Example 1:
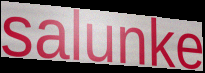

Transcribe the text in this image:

salunke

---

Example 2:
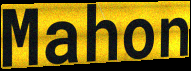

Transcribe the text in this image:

Mahon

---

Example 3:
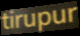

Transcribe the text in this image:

tirupur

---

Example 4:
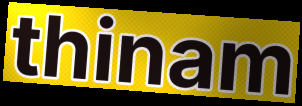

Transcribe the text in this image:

thinam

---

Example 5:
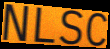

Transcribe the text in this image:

NLSC